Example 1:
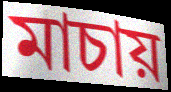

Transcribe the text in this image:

মাচায়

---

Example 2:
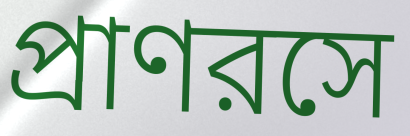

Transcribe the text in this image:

প্রাণরসে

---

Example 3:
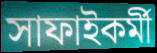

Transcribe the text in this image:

সাফাইকর্মী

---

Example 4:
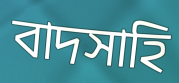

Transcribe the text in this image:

বাদসাহি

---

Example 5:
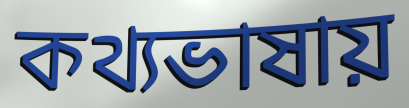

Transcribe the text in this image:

কথ্যভাষায়